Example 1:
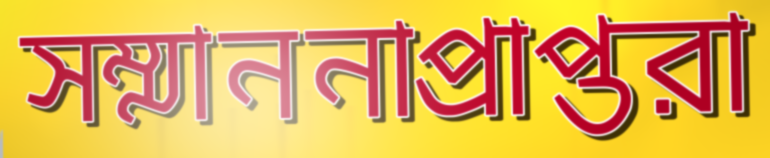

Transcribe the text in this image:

সম্মাননাপ্রাপ্তরা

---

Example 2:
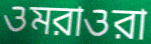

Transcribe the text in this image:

ওমরাওরা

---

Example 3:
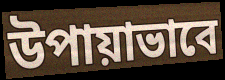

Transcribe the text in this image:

উপায়াভাবে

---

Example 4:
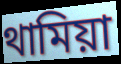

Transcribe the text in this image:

থামিয়া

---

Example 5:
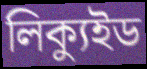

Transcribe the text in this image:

লিক্যুইড